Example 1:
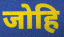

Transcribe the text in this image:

जोहि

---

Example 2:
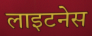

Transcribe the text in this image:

लाइटनेस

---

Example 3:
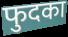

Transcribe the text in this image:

फुदका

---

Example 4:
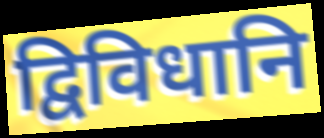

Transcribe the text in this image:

द्विविधानि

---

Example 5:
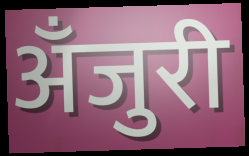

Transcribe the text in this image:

अँजुरी